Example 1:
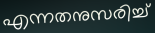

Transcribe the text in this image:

എന്നതനുസരിച്ച്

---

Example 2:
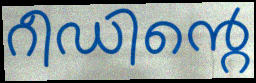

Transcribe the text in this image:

റീഡിന്റെ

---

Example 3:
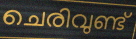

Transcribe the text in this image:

ചെരിവുണ്ട്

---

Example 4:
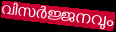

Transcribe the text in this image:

വിസർജ്ജനവും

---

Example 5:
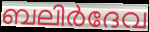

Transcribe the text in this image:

ബലിർദേവ